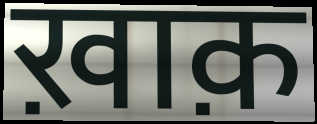
ख़ाक़